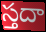
స్తదా